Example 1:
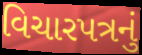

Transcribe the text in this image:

વિચારપત્રનું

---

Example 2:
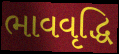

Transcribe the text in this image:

ભાવવૃદ્ધિ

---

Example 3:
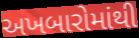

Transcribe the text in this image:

અખબારોમાંથી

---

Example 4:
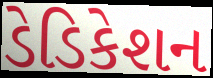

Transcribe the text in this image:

ડેડિકેશન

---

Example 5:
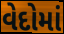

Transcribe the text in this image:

વેદોમાં